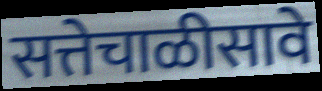
सत्तेचाळीसावे